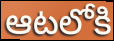
ఆటలోకి